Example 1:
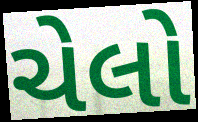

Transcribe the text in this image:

ચેલો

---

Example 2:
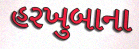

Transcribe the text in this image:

હરખુબાના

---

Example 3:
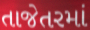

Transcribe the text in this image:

તાજેતરમાં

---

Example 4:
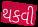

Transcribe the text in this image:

થકવી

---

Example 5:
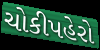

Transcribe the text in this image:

ચોકીપહેરો